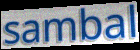
sambal